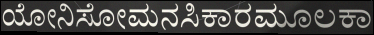
ಯೋನಿಸೋಮನಸಿಕಾರಮೂಲಕಾ